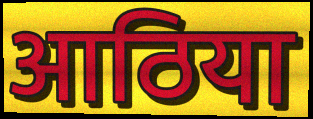
आठिया